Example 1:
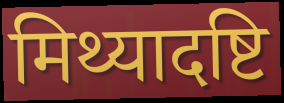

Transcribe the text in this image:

मिथ्यादष्टि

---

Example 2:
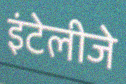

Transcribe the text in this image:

इंटेलीजे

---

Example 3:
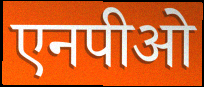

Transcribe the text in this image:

एनपीओ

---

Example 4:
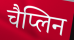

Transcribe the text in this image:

चैप्लिन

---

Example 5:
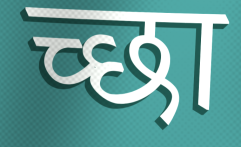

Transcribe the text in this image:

च्छा